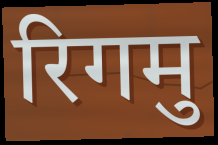
रिगमु